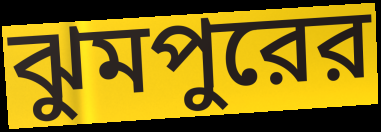
ঝুমপুরের